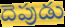
దెపుడు